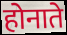
होनाते